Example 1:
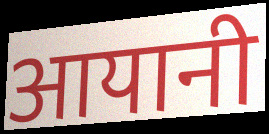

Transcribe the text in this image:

आयानी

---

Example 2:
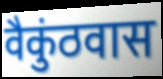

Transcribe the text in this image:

वैकुंठवास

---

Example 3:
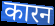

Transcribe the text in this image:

कारन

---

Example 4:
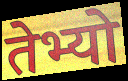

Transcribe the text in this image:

तेभ्यो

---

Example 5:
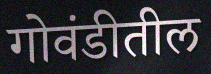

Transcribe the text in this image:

गोवंडीतील